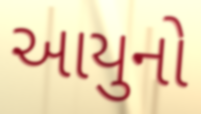
આયુનો